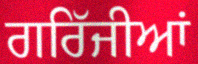
ਗਰਿੱਜੀਆਂ